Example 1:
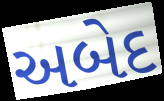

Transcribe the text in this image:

અબેદ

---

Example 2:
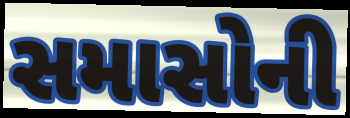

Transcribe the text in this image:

સમાસોની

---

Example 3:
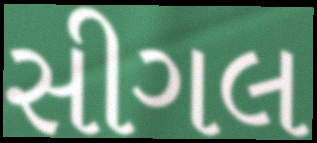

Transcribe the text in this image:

સીગલ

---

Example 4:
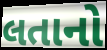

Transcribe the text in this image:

લતાનો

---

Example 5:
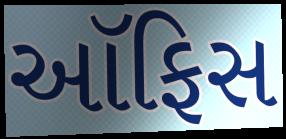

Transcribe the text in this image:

આૅફિસ